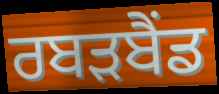
ਰਬੜਬੈਂਡ